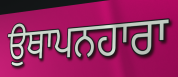
ਉਥਾਪਨਹਾਰਾ